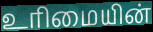
உரிமையின்